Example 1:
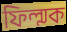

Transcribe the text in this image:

ফিল্মক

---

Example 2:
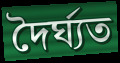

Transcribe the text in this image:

দৈৰ্ঘ্যত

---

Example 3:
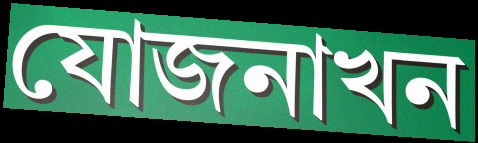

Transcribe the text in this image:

যোজনাখন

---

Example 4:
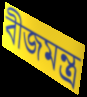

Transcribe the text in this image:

বীজমন্ত্ৰ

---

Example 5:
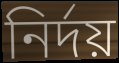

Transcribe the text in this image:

নিৰ্দয়